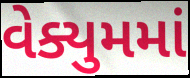
વેક્યુમમાં